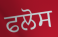
ਫਲੋਸ